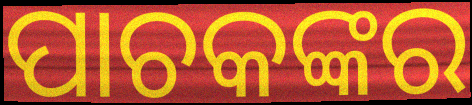
ପାଚକଙ୍କର